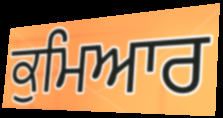
ਕੁਮਿਆਰ